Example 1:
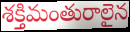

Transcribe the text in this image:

శక్తిమంతురాలైన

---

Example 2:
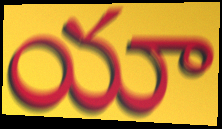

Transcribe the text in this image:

యా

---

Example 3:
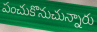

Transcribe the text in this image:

పంచుకొనుచున్నారు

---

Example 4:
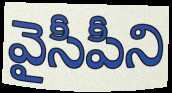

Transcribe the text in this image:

వైసీపీని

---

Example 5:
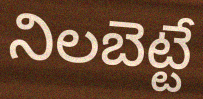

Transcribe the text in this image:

నిలబెట్టే